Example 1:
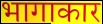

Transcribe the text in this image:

भागाकार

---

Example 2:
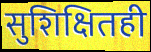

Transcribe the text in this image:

सुशिक्षितही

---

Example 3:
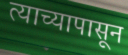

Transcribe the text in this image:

त्याच्यापासून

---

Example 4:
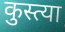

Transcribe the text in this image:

कुस्त्या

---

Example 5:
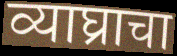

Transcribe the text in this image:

व्याघ्राचा